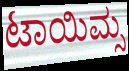
ಟಾಯಿಮ್ಸ